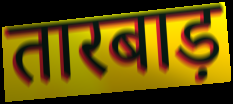
तारबाड़